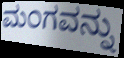
ಮಂಗವನ್ನು